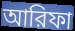
আরিফা